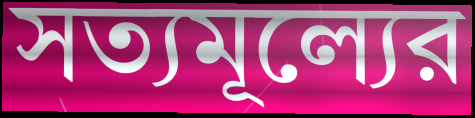
সত্যমূল্যের